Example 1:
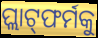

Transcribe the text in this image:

ପ୍ଲାଟ୍‌ଫର୍ମକୁ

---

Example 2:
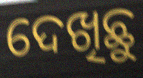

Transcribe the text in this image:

ଦେଖିଛୁ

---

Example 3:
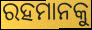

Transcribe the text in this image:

ରହମାନକୁ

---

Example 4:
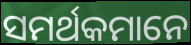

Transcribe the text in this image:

ସମର୍ଥକମାନେ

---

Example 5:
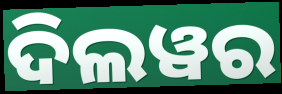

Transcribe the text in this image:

ଦିଲୱର